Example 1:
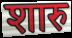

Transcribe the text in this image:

शारु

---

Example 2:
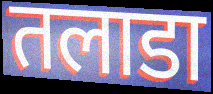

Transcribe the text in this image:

तलाडा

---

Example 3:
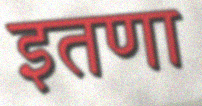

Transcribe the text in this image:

इतणा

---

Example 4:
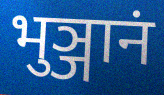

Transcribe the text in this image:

भुञ्जानं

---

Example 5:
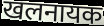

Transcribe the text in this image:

खलनायक